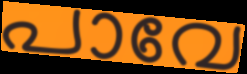
പാവേ